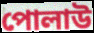
পোলাউ